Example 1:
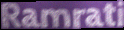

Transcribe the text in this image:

Ramrati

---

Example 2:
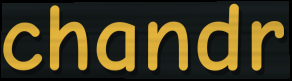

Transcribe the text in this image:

chandr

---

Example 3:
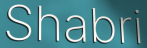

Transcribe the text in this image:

Shabri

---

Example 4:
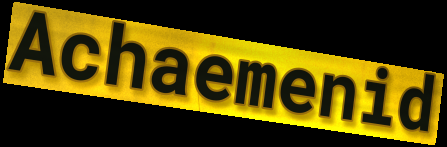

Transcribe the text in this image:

Achaemenid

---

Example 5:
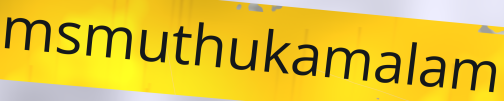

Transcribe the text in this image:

msmuthukamalam